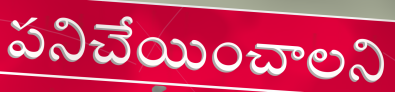
పనిచేయించాలని